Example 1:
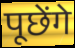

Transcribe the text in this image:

पूछेंगे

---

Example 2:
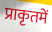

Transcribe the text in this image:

प्राकृतमें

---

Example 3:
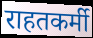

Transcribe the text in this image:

राहतकर्मी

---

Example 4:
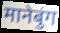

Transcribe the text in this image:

मानेबुंग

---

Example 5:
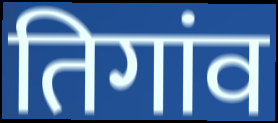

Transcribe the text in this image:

तिगांव